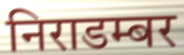
निराडम्बर